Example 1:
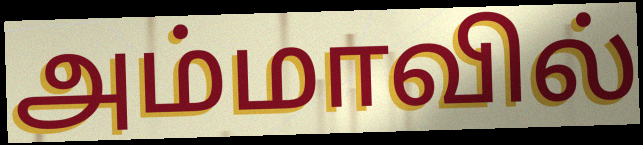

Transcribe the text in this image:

அம்மாவில்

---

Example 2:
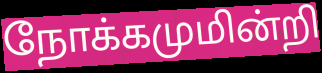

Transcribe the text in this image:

நோக்கமுமின்றி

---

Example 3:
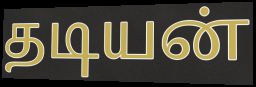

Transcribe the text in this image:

தடியன்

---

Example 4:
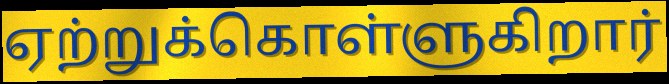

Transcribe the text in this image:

ஏற்றுக்கொள்ளுகிறார்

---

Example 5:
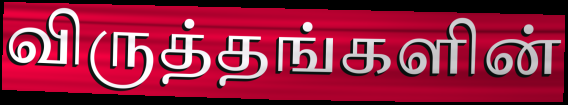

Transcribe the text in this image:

விருத்தங்களின்